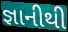
જ્ઞાનીથી